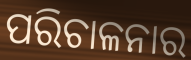
ପରିଚାଳନାର